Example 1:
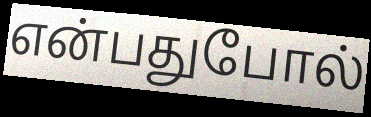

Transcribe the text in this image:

என்பதுபோல்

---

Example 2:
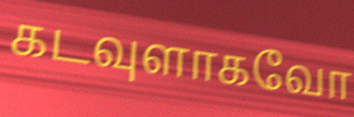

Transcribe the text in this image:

கடவுளாகவோ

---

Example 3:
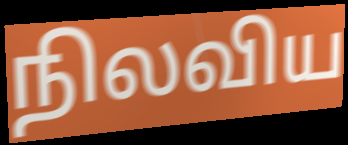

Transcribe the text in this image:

நிலவிய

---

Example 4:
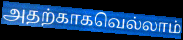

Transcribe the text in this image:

அதற்காகவெல்லாம்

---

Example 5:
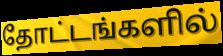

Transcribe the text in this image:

தோட்டங்களில்